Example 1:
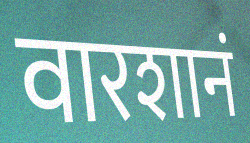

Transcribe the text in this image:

वारशानं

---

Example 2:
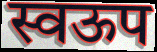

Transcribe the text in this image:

स्वऊप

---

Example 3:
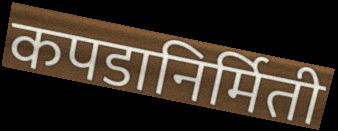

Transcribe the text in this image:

कपडानिर्मिती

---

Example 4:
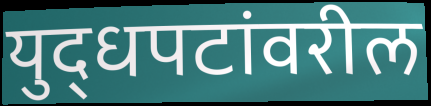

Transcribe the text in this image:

युद्धपटांवरील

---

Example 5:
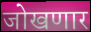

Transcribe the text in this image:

जोखणार